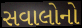
સવાલોનો